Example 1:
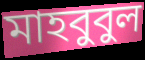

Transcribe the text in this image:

মাহবুবুল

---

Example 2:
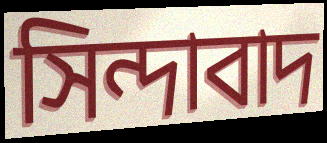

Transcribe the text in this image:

সিন্দাবাদ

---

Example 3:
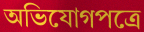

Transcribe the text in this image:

অভিযোগপত্রে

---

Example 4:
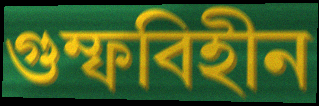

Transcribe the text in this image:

গুম্ফবিহীন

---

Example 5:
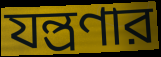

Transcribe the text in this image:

যন্ত্রণার